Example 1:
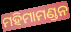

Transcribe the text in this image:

ମହିମାମଣ୍ଡନ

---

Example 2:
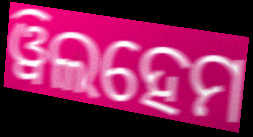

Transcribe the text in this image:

ୱିଲହେମ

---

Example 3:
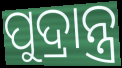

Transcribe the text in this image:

ପୁଦ୍ରାନ୍ତ୍ର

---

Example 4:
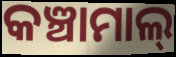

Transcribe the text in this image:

କଞ୍ଚାମାଲ୍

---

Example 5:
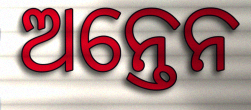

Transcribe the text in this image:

ଅନ୍ତେନ